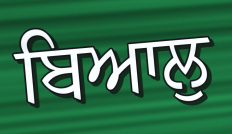
ਬਿਆਲੁ